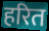
हरित